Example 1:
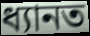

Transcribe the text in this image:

ধ্যানত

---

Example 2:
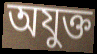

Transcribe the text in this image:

অযুক্ত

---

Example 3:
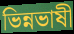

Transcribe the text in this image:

ভিন্নভাষী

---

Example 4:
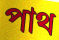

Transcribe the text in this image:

পাথ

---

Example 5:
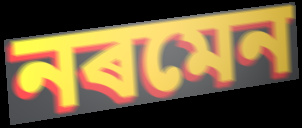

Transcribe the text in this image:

নৰমেন